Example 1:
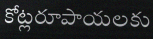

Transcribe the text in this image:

కోట్లరూపాయలకు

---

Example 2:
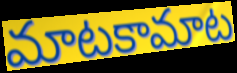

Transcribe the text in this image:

మాటకామాట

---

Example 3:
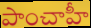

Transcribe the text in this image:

పాంచాహీ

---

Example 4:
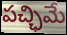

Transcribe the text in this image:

పచ్ఛిమే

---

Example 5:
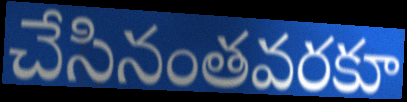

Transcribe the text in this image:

చేసినంతవరకూ